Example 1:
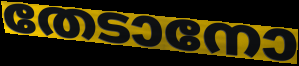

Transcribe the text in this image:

തേടാനോ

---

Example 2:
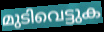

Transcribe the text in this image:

മുടിവെട്ടുക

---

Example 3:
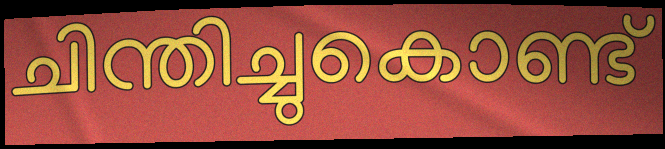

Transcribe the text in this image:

ചിന്തിച്ചുകൊണ്ട്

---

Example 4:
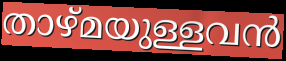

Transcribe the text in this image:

താഴ്മയുള്ളവൻ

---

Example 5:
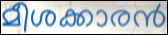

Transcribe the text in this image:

മീശക്കാരൻ